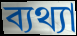
ব্যথ্যা